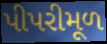
પીપરીમૂળ